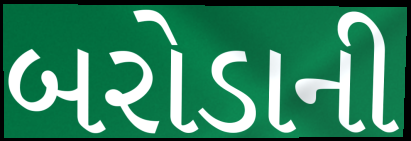
બરોડાની